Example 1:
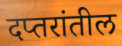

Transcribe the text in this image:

दप्तरांतील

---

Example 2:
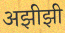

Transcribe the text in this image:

अझीझी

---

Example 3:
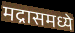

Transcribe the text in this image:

मद्रासमध्ये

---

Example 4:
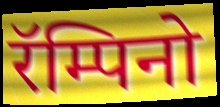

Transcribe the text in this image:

रॅम्पिनो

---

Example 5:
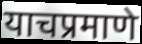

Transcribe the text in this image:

याचप्रमाणे